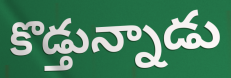
కొడ్తున్నాడు